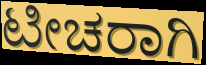
ಟೀಚರಾಗಿ